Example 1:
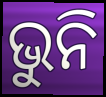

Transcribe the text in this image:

ଭୁନି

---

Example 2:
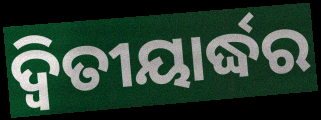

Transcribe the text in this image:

ଦ୍ୱିତୀୟାର୍ଦ୍ଧର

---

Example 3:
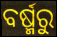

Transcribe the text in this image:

ବର୍ଷ୍ମରୁ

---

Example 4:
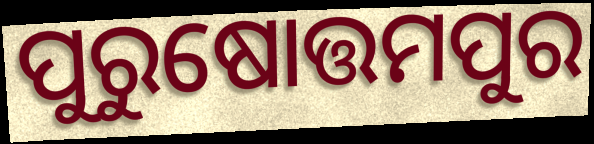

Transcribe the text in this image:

ପୁରୁଷୋତ୍ତମପୁର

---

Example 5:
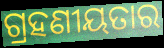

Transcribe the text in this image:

ଗ୍ରହଣୀୟତାର